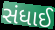
સંધાઈ